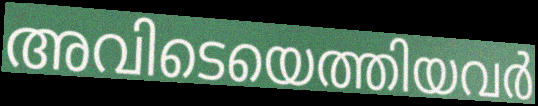
അവിടെയെത്തിയവർ